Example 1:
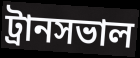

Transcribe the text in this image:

ট্রানসভাল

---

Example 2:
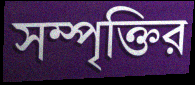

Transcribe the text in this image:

সম্পৃক্তির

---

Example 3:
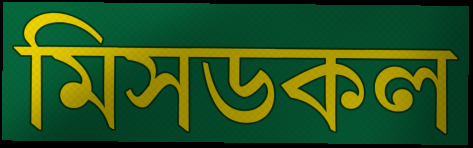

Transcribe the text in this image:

মিসডকল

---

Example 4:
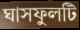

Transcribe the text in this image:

ঘাসফুলটি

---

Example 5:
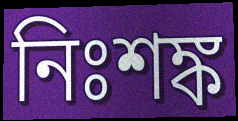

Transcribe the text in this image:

নিঃশঙ্ক